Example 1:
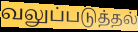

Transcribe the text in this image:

வலுப்படுத்தல்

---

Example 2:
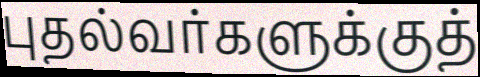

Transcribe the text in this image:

புதல்வர்களுக்குத்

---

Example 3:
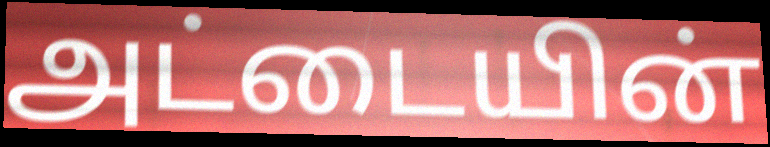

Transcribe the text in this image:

அட்டையின்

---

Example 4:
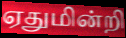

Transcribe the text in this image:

ஏதுமின்றி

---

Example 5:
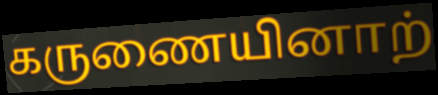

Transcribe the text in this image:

கருணையினாற்